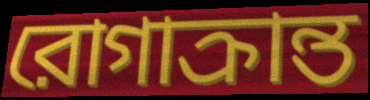
রোগাক্রান্ত